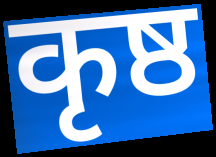
कृष्ठ